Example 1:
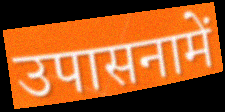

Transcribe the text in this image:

उपासनामें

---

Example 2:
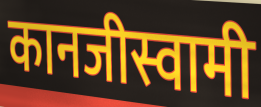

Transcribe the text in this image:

कानजीस्वामी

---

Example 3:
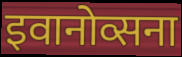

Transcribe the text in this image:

इवानोव्सना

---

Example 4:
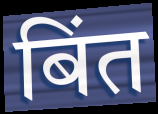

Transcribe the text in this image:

बिंत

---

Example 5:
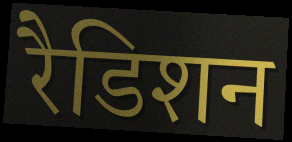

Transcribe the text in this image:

रैडिशन